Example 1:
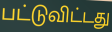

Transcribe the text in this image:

பட்டுவிட்டது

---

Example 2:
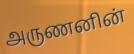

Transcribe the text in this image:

அருணனின்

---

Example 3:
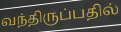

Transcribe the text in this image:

வந்திருப்பதில்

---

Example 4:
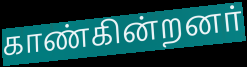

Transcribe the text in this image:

காண்கின்றனர்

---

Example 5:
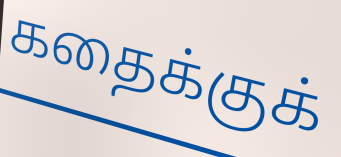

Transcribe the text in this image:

கதைக்குக்